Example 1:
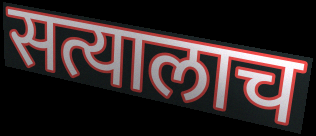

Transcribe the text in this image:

सत्यालाच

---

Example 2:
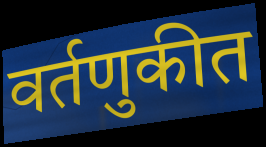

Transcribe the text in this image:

वर्तणुकीत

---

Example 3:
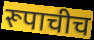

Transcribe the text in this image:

रूपाचीच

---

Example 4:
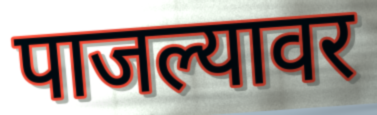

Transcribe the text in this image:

पाजल्यावर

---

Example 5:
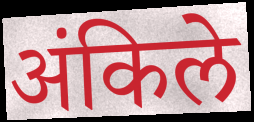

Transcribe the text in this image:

अंकिले